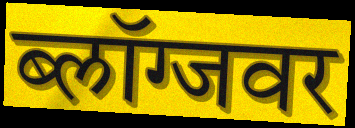
ब्लॉग्जवर